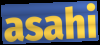
asahi